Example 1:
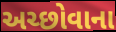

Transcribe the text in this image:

અચ્છોવાના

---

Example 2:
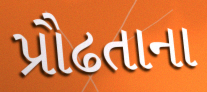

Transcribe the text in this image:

પ્રૌઢતાના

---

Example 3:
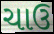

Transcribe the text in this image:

ચાઉ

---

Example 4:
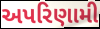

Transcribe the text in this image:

અપરિણામી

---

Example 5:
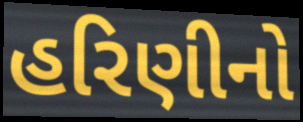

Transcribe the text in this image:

હરિણીનો